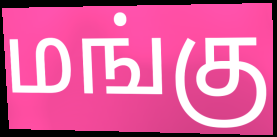
மங்கு